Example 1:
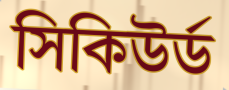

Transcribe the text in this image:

সিকিউর্ড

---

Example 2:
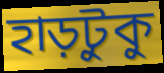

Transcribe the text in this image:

হাড়টুকু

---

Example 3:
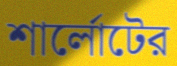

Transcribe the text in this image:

শার্লোটের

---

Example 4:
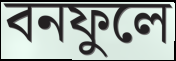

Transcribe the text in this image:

বনফুলে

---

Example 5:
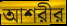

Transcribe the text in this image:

আশরীর